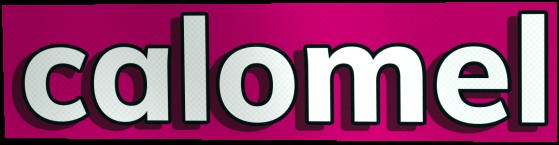
calomel